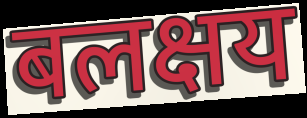
बलक्षय